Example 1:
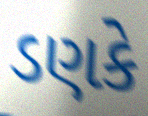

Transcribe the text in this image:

ડણકે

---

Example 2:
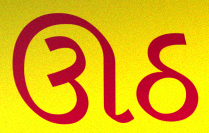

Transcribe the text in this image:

ઊઠ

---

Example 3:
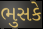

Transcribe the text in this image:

ભુસકે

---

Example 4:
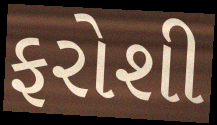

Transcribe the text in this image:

ફરોશી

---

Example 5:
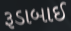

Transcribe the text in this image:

રૂડાબાઈ